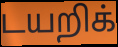
டயறிக்